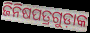
ଜିନିଷପତ୍ରଗୁଡ଼ାକ